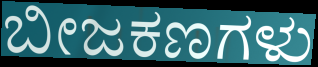
ಬೀಜಕಣಗಳು